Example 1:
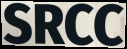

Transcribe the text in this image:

SRCC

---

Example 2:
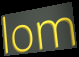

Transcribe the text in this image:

lom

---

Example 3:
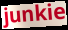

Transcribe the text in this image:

junkie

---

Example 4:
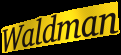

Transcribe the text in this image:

Waldman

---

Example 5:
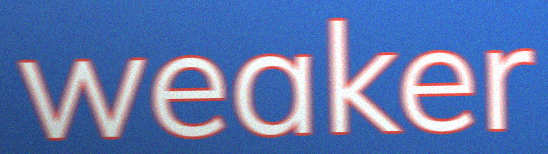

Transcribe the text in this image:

weaker